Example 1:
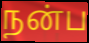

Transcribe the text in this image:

நன்ப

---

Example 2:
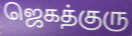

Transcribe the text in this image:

ஜெகத்குரு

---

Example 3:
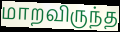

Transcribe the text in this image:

மாறவிருந்த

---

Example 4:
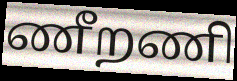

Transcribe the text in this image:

ணீறணி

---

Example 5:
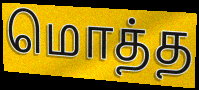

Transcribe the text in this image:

மொத்த